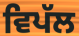
ਵਿਪੱਲ